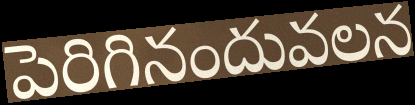
పెరిగినందువలన